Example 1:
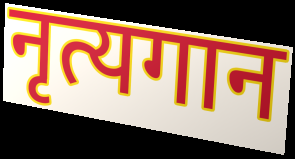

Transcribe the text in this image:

नृत्यगान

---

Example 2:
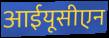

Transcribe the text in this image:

आईयूसीएन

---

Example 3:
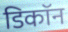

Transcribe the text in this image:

डिकॉन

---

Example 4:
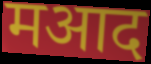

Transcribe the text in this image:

मआद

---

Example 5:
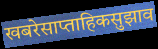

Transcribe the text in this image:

खबरेसाप्ताहिकसुझाव